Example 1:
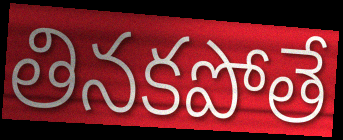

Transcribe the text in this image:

తినకపోతే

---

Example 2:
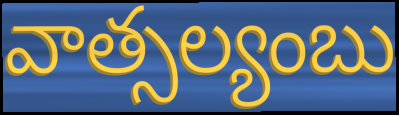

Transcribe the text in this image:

వాత్సల్యంబు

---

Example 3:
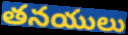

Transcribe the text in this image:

తనయులు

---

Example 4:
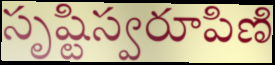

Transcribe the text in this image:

సృష్టిస్వరూపిణి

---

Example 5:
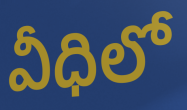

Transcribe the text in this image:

వీధిలో